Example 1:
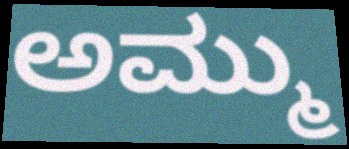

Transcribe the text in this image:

ಅಮ್ಮು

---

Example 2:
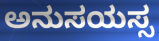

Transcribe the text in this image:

ಅನುಸಯಸ್ಸ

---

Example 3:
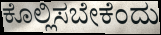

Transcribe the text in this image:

ಕೊಲ್ಲಿಸಬೇಕೆಂದು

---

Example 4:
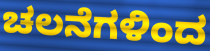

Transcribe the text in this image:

ಚಲನೆಗಳಿಂದ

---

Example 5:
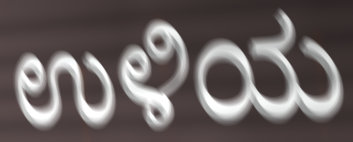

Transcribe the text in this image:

ಉಳಿಯ